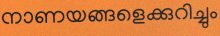
നാണയങ്ങളെക്കുറിച്ചും